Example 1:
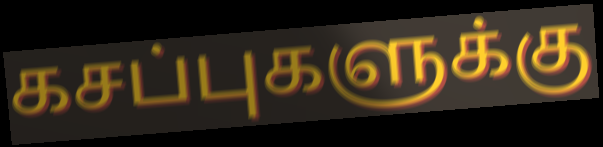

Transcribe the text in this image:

கசப்புகளுக்கு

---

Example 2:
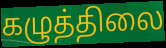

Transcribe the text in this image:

கழுத்திலை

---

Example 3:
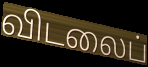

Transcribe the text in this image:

விடலைப்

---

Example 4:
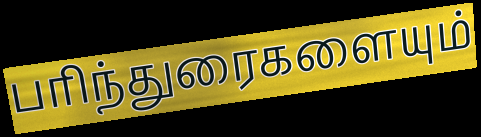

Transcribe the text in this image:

பரிந்துரைகளையும்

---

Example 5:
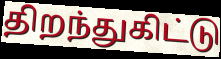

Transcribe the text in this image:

திறந்துகிட்டு